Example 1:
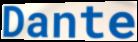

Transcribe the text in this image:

Dante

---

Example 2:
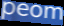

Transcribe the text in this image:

peom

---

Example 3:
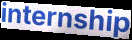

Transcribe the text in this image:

internship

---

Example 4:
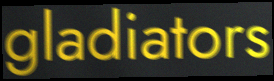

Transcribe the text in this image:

gladiators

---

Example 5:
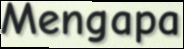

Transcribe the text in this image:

Mengapa